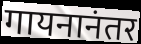
गायनानंतर